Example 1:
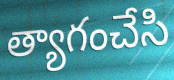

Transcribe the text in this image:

త్యాగంచేసి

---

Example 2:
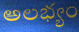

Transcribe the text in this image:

అలభ్యం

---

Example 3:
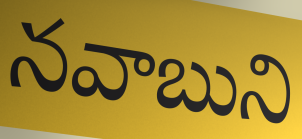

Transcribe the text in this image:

నవాబుని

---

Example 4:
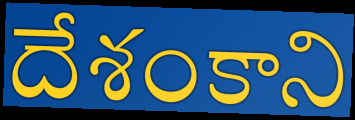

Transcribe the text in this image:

దేశంకాని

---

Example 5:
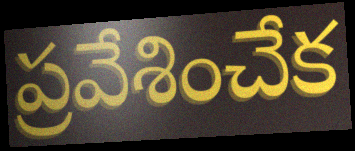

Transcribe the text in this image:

ప్రవేశించేక